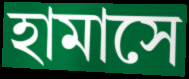
হামাসে